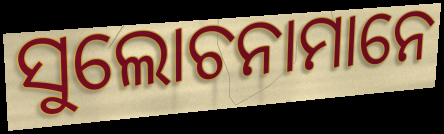
ସୁଲୋଚନାମାନେ